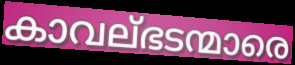
കാവല്ഭടന്മാരെ